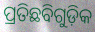
ପ୍ରତିଛବିଗୁଡ଼ିକ